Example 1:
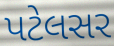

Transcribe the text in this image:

પટેલસર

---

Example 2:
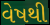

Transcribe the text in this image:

વેષથી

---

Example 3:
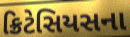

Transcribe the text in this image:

ક્રિટેસિયસના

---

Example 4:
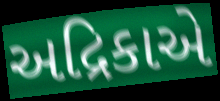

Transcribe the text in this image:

અદ્રિકાએ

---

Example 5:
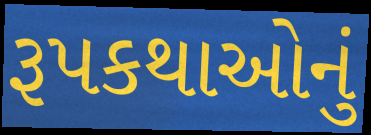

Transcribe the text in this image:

રૂપકથાઓનું